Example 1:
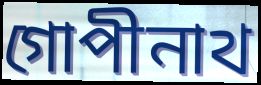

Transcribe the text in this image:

গোপীনাথ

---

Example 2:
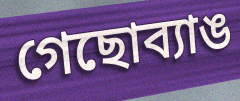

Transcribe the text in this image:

গেছোব্যাঙ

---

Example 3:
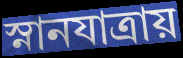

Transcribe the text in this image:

স্নানযাত্রায়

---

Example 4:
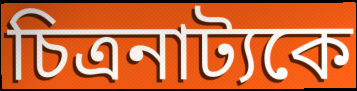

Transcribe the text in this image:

চিত্রনাট্যকে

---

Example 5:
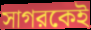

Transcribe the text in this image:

সাগরকেই